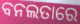
ବନଲତାରେ